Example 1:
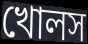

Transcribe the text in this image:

খোলস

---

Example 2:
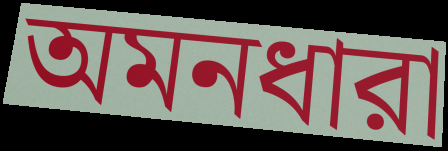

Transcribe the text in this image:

অমনধারা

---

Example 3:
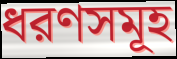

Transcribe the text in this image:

ধরণসমূহ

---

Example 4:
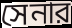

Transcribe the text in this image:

সেনার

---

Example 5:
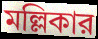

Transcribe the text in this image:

মল্লিকার